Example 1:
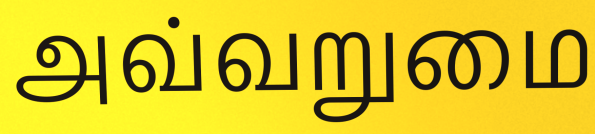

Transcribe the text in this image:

அவ்வறுமை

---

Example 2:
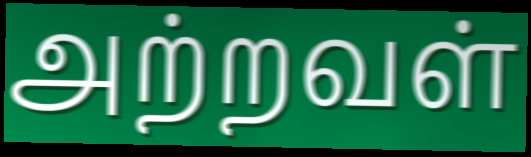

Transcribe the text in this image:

அற்றவள்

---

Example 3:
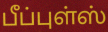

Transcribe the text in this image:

பீப்புள்ஸ்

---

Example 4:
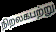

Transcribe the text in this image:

நிறலகபற்று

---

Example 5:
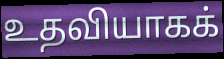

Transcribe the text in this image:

உதவியாகக்